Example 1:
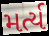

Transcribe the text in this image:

મર્ત્ય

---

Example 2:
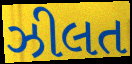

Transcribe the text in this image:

ઝીલત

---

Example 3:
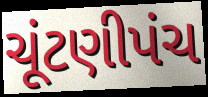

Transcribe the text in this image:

ચૂંટણીપંચ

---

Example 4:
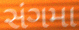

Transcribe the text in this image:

સંગમા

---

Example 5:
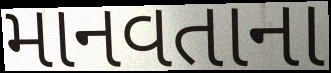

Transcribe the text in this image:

માનવતાના